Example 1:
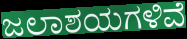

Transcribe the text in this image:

ಜಲಾಶಯಗಳಿವೆ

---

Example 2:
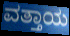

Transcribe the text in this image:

ವತ್ತಾಯ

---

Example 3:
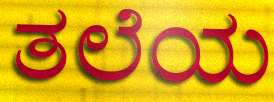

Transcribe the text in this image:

ತಲೆಯ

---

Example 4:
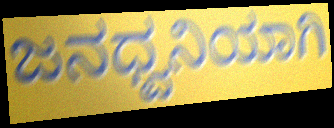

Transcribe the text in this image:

ಜನಧ್ವನಿಯಾಗಿ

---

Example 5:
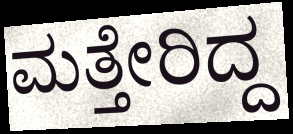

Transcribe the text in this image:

ಮತ್ತೇರಿದ್ದ